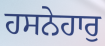
ਹਸਨੇਹਾਰੁ